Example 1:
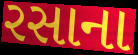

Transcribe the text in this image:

રસાના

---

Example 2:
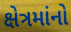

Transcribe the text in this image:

ક્ષેત્રમાંનો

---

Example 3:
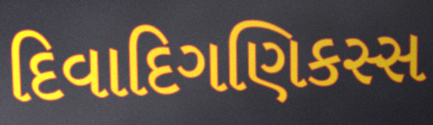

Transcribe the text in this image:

દિવાદિગણિકસ્સ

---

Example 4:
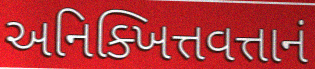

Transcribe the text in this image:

અનિક્ખિત્તવત્તાનં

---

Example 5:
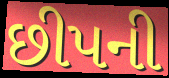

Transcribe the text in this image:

છીપની